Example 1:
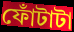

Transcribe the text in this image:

ফোঁটাটা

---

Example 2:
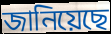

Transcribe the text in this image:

জানিয়েছে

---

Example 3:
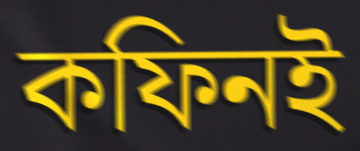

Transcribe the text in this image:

কফিনই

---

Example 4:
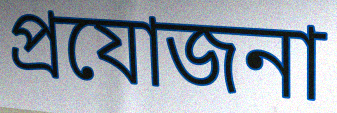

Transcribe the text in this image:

প্রযোজনা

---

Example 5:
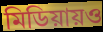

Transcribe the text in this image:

মিডিয়ায়ও